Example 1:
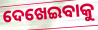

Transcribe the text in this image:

ଦେଖେଇବାକୁ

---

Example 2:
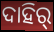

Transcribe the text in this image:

ଦାହିର୍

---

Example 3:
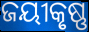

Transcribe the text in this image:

ଜୟୀକୃଷ୍ଣ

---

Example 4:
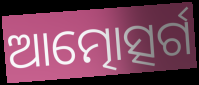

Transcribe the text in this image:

ଆତ୍ମୋତ୍ସର୍ଗ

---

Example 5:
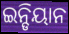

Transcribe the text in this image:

ଇନ୍ଡିୟାନ